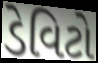
ડેવિટો